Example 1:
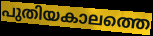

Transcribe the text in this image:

പുതിയകാലത്തെ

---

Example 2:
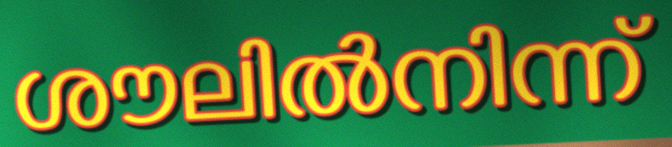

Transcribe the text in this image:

ശൗലിൽനിന്ന്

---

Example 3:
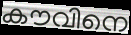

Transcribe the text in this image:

കൗവിനെ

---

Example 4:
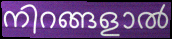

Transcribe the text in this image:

നിറങ്ങളാൽ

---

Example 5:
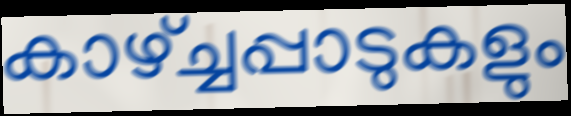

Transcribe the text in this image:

കാഴ്ച്ചപ്പാടുകളും